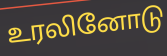
உரலினோடு